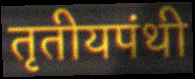
तृतीयपंथी